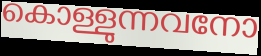
കൊള്ളുന്നവനോ